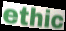
ethic